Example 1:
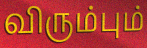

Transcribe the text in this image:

விரும்பும்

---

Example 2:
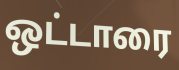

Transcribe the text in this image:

ஒட்டாரை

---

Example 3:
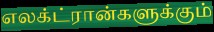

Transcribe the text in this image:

எலக்ட்ரான்களுக்கும்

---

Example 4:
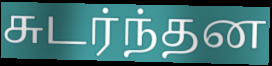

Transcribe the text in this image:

சுடர்ந்தன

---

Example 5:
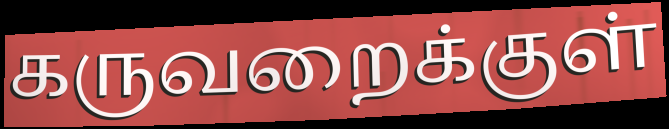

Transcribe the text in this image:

கருவறைக்குள்